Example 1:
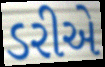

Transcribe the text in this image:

ડરીએ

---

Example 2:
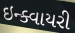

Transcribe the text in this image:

ઇન્ક્વાયરી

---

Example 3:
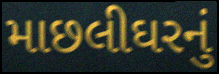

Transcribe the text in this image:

માછલીઘરનું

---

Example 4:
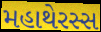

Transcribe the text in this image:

મહાથેરસ્સ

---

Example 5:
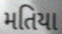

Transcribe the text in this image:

મતિયા